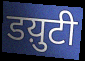
डय़ुटी